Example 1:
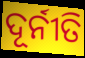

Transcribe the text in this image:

ଦୂର୍ନୀତି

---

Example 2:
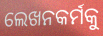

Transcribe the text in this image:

ଲେଖନକର୍ମକୁ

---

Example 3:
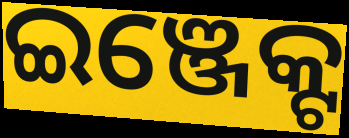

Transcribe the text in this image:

ଇଞ୍ଜେକ୍ଟ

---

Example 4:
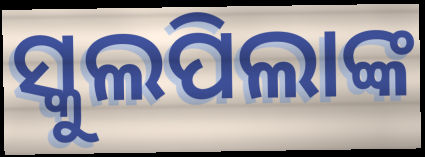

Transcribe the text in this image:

ସ୍କୁଲପିଲାଙ୍କ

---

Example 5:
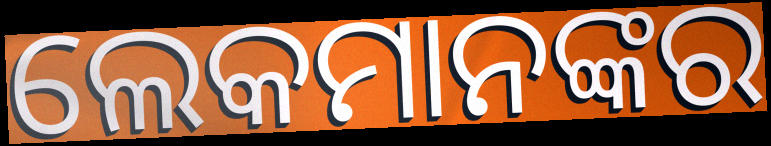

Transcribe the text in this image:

ଲେକମାନଙ୍କର